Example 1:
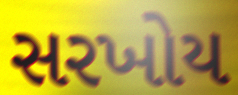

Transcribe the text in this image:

સરખોય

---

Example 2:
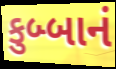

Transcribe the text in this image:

કુબ્બાનં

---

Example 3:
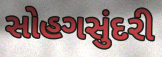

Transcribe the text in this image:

સોહગસુંદરી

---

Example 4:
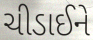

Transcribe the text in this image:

ચીડાઈને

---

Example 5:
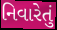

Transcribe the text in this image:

નિવારેતું